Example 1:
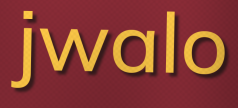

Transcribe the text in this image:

jwalo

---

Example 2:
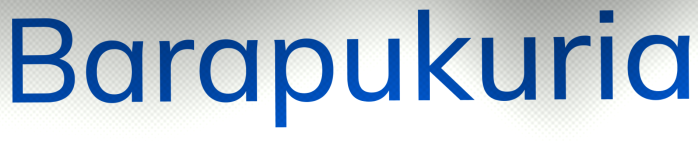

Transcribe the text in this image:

Barapukuria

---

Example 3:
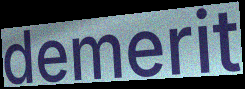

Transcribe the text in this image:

demerit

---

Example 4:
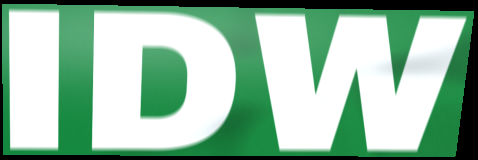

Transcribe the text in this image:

IDW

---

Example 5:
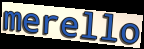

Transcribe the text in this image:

merello